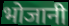
भोजानी